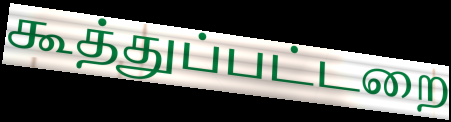
கூத்துப்பட்டறை